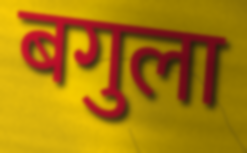
बगुला